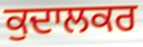
ਕੁਦਾਲਕਰ